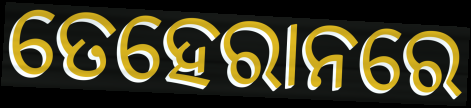
ତେହେରାନରେ